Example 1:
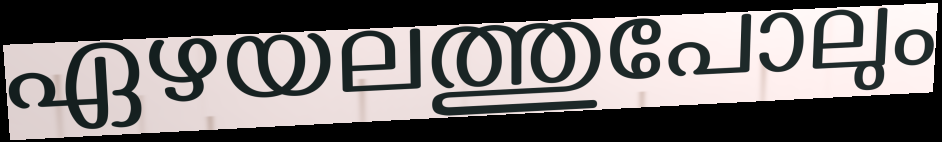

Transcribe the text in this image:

ഏഴയലത്തുപോലും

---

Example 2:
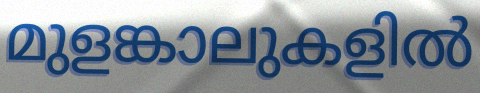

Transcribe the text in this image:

മുളങ്കാലുകളിൽ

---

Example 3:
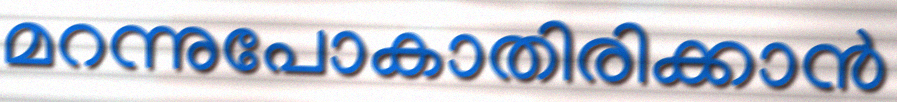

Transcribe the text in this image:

മറന്നുപോകാതിരിക്കാൻ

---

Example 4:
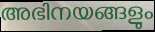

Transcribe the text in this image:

അഭിനയങ്ങളും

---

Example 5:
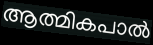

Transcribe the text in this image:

ആത്മികപാൽ